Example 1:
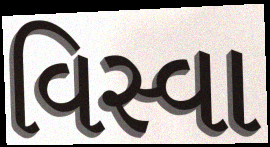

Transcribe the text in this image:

વિસ્વા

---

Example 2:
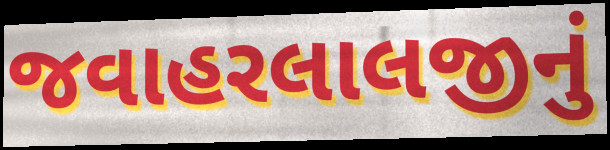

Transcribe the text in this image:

જવાહરલાલજીનું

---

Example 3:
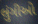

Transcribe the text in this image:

લુંગીઓ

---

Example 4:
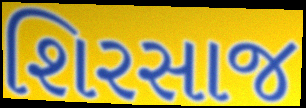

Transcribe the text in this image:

શિરસાજ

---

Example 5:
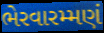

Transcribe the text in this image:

ભેરવારમ્મણં